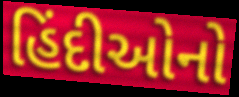
હિંદીઓનો